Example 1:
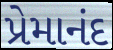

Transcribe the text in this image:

પ્રેમાનંદ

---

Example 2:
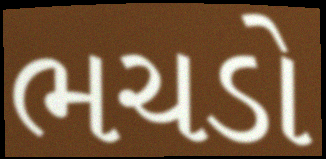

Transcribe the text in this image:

ભચડો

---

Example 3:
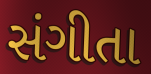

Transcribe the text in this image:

સંગીતા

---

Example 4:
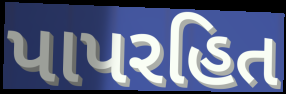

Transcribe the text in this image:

પાપરહિત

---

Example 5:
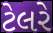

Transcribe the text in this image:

ટેલરે